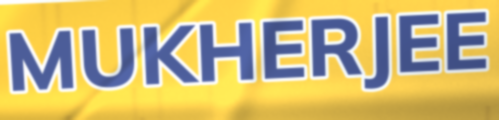
MUKHERJEE